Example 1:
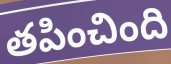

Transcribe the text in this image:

తపించింది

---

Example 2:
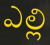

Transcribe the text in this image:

ఎల్లి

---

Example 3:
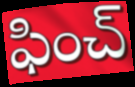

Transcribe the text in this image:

ఫించ్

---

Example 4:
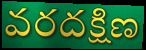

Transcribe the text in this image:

వరదక్షిణ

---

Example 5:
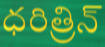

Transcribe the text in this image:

ధరిత్రిన్